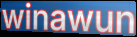
winawun